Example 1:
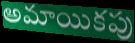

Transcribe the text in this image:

అమాయికపు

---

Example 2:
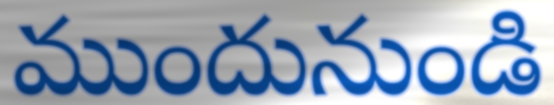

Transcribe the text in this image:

ముందునుండి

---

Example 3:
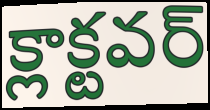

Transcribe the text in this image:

క్లాక్టవర్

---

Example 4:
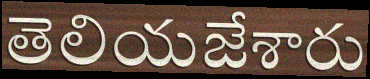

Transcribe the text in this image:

తెలియజేశారు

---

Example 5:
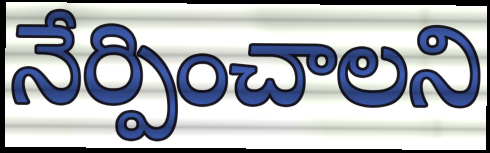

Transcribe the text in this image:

నేర్పించాలని